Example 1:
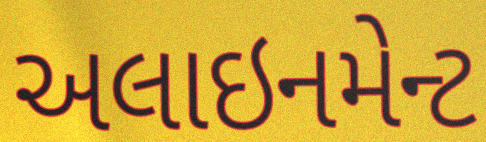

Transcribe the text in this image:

અલાઇનમેન્ટ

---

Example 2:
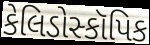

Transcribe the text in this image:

કેલિડોસ્કૉપિક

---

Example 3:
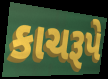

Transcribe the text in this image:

કાચરૂપે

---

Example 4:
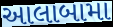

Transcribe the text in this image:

આલાબામા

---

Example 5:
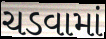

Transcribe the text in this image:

ચડવામાં